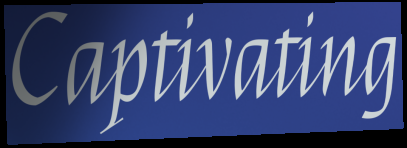
Captivating